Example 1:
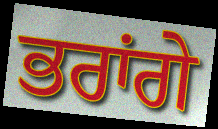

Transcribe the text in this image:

ਭਰਾਂਗੇ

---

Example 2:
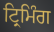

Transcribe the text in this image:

ਟ੍ਰਿਮਿੰਗ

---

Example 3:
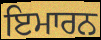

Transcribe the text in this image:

ਇਮਾਰਨ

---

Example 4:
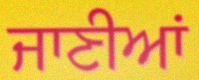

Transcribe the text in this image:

ਜਾਣੀਆਂ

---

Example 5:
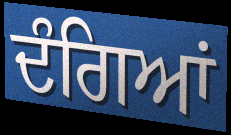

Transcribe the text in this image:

ਦੰਗਿਆਂ